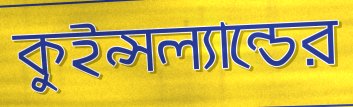
কুইন্সল্যান্ডের